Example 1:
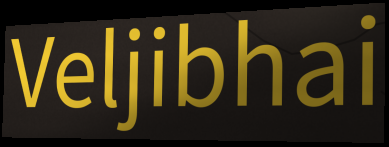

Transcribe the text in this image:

Veljibhai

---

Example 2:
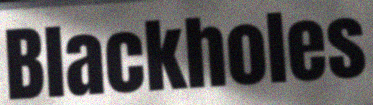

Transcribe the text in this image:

Blackholes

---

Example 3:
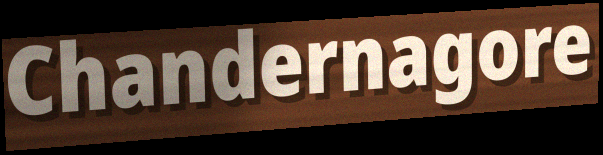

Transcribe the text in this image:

Chandernagore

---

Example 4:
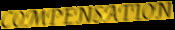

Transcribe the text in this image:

COMPENSATION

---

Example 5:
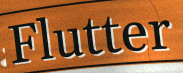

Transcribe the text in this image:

Flutter